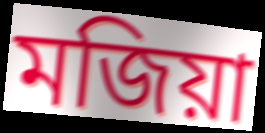
মজিয়া